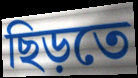
ছিড়তে